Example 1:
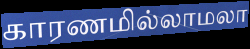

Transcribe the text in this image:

காரணமில்லாமலா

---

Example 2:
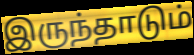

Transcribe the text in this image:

இருந்தாடும்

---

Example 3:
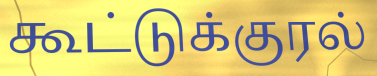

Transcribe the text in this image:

கூட்டுக்குரல்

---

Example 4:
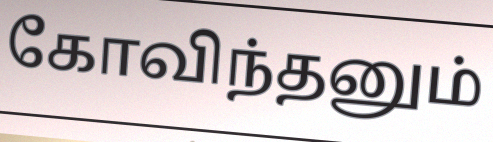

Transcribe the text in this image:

கோவிந்தனும்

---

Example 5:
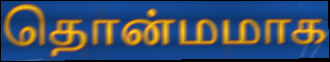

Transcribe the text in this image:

தொன்மமாக